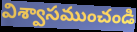
విశ్వాసముంచండి